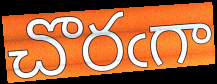
చొరఁగా